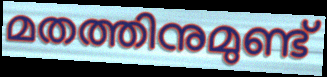
മതത്തിനുമുണ്ട്